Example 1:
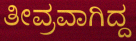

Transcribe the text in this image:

ತೀವ್ರವಾಗಿದ್ದ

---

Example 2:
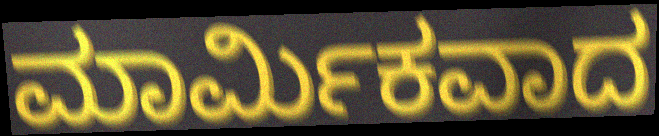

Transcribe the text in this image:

ಮಾರ್ಮಿಕವಾದ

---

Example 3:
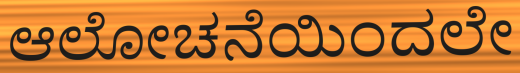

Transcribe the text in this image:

ಆಲೋಚನೆಯಿಂದಲೇ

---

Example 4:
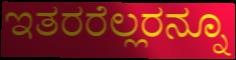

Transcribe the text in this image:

ಇತರರೆಲ್ಲರನ್ನೂ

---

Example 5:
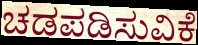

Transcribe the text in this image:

ಚಡಪಡಿಸುವಿಕೆ